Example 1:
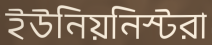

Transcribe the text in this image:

ইউনিয়নিস্টরা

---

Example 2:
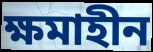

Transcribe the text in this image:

ক্ষমাহীন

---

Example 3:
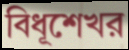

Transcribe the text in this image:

বিধূশেখর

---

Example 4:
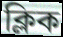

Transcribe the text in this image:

ক্লিক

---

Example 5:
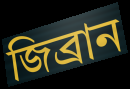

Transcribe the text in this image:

জিব্রান